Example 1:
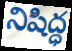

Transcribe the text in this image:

నిషిద్ధ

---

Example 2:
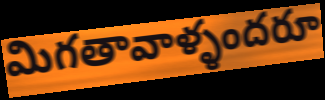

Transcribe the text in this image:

మిగతావాళ్ళందరూ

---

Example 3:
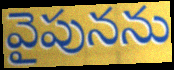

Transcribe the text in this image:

వైపునను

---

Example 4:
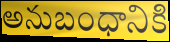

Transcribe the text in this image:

అనుబంధానికి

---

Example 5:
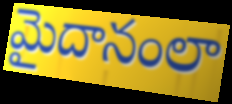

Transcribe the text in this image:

మైదానంలా